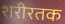
शरीरतक